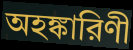
অহঙ্কারিণী